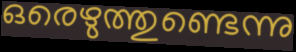
ഒരെഴുത്തുണ്ടെന്നു